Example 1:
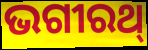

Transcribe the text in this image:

ଭଗୀରଥ୍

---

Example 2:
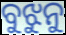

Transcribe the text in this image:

ବୁଝୁନୁ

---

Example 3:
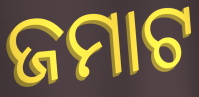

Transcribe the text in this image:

ଜମାଟ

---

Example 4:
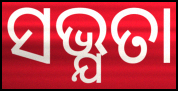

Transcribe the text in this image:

ସଭ୍ଯତା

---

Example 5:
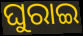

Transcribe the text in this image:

ଘୁରାଇ